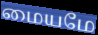
மையமே